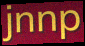
jnnp